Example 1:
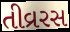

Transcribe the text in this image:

તીવ્રરસ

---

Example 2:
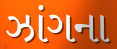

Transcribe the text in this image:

ઝાંગના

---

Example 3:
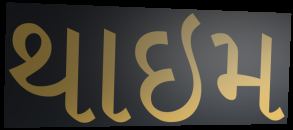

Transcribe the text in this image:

થાઇમ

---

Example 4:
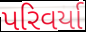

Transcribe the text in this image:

પરિવર્યા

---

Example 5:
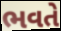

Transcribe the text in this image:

ભવતે